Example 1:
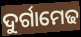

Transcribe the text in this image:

ଦୁର୍ଗାମେଢ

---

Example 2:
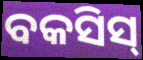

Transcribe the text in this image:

ବକସିସ୍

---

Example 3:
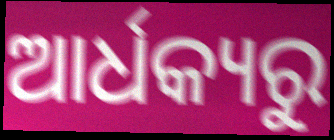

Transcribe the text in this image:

ଆର୍ଧକ୍ୟରୁ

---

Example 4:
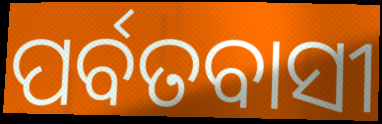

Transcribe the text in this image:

ପର୍ବତବାସୀ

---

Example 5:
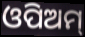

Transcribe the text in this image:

ଓପିଅମ୍